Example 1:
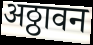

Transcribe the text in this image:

अठ्ठावन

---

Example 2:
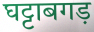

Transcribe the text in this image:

घट्टाबगड़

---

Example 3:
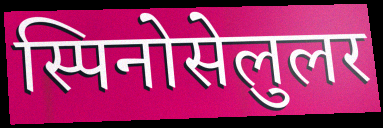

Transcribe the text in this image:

स्पिनोसेलुलर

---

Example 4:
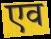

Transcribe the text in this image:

एव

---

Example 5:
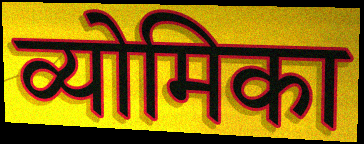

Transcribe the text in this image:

व्योमिका